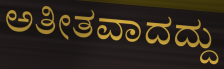
ಅತೀತವಾದದ್ದು